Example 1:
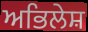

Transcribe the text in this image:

ਅਭਿਲੇਸ਼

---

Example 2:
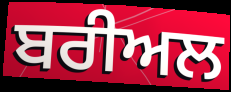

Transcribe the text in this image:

ਬਰੀਅਲ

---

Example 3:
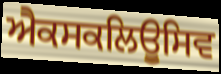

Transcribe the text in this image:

ਐਕਸਕਲਿਊਸਿਵ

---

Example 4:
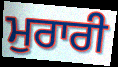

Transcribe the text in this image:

ਮੁਰਾਰੀ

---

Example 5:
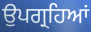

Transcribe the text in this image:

ਉਪਗ੍ਰਹਿਆਂ